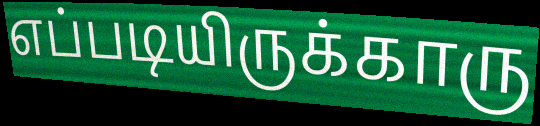
எப்படியிருக்காரு